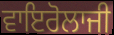
ਵਾਇਰੋਲਾਜੀ